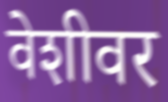
वेशीवर